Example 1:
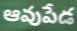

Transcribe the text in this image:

ఆవుపేడ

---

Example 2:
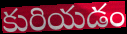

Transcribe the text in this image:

కురియడం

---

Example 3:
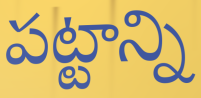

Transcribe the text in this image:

పట్టాన్ని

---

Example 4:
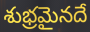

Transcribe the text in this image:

శుభ్రమైనదే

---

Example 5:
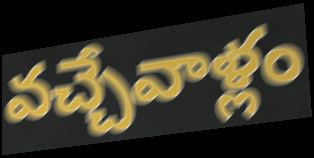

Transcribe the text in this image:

వచ్చేవాళ్లం